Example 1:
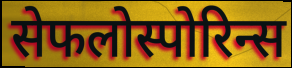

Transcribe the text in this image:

सेफलोस्पोरिन्स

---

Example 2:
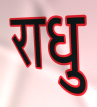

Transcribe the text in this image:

राधु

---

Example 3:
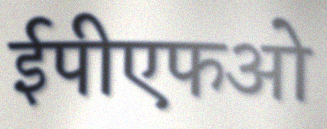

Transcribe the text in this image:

ईपीएफओ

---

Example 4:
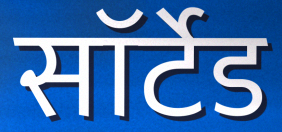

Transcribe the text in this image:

सॉर्टेड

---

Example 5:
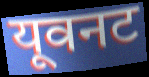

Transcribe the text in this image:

यूवनट